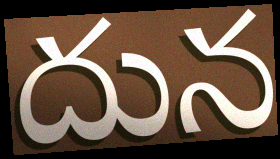
దున